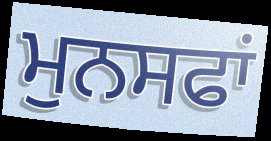
ਮੁਨਸਫਾਂ